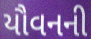
યૌવનની